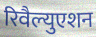
रिवैल्युएशन